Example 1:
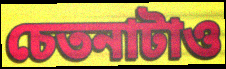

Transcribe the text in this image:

চেতনাটাও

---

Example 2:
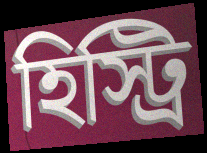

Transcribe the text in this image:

হিস্ট্রি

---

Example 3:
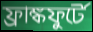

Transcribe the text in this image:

ফ্রাঙ্কফুর্টে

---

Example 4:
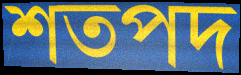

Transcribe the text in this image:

শতপদ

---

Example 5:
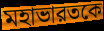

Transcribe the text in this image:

মহাভারতকে